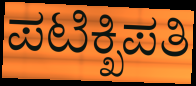
ಪಟಿಕ್ಖಿಪತಿ